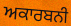
ਅਕਾਰਬਨੀ